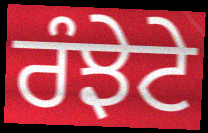
ਰੰਝੇਟੇ